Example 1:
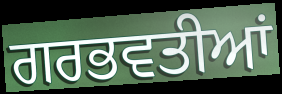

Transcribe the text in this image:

ਗਰਭਵਤੀਆਂ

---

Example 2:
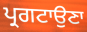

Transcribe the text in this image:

ਪ੍ਰਗਟਾਉਣਾ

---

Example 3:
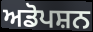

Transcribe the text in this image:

ਅਡੋਪਸ਼ਨ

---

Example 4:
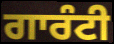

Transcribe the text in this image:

ਗਾਰੰਟੀ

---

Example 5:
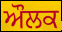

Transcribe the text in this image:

ਔਲਕ